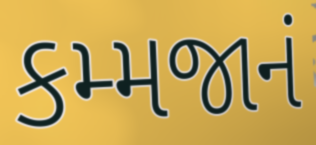
કમ્મજાનં